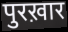
पुरख़ार